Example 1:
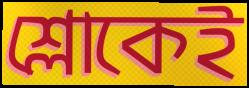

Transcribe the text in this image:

শ্লোকেই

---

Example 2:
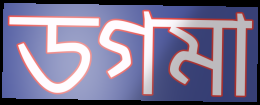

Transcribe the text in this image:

ডগমা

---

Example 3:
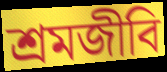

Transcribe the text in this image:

শ্রমজীবি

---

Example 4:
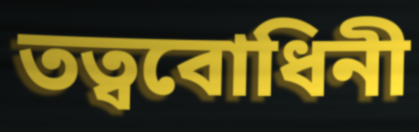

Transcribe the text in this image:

তত্ববোধিনী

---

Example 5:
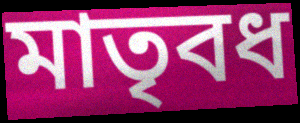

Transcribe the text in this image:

মাতৃবধ